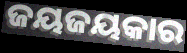
ଜୟଜୟକାର